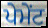
ਪੇਮੇਂਟ